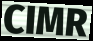
CIMR